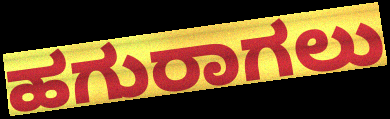
ಹಗುರಾಗಲು